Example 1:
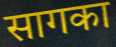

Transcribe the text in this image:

सागका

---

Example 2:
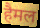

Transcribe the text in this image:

हैमल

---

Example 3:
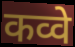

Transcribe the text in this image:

कव्वे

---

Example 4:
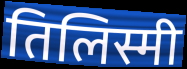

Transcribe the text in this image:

तिलिस्मी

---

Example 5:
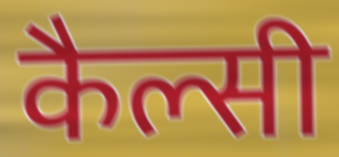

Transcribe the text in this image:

कैल्सी